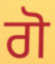
ਗੋ